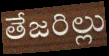
తేజరిల్లు